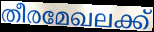
തീരമേഖലക്ക്